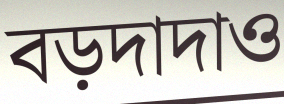
বড়দাদাও